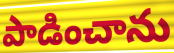
పాడించాను